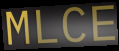
MLCE